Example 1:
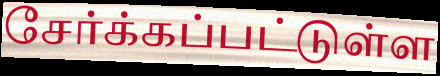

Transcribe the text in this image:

சேர்க்கப்பட்டுள்ள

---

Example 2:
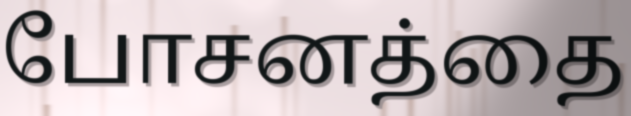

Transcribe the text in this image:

போசனத்தை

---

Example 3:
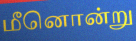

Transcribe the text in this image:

மீனொன்று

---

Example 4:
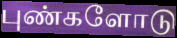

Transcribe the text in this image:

புண்களோடு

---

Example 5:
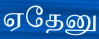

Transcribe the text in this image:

ஏதேனு